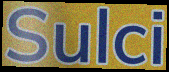
Sulci